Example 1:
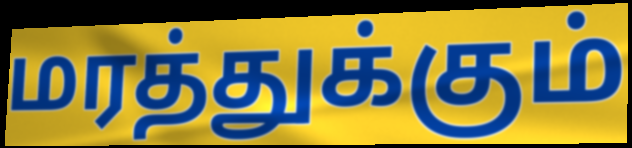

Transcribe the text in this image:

மரத்துக்கும்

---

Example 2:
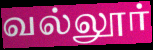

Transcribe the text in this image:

வல்லூர்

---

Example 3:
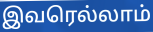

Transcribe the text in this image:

இவரெல்லாம்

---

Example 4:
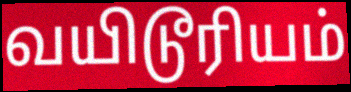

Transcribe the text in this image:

வயிடூரியம்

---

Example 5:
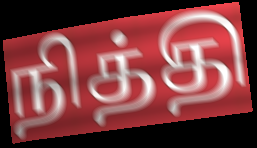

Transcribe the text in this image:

நித்தி